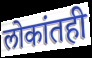
लोकांतही